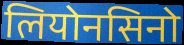
लियोनसिनो